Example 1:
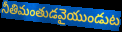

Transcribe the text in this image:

నీతిమంతుడవైయుండుట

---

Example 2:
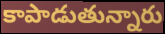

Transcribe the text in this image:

కాపాడుతున్నారు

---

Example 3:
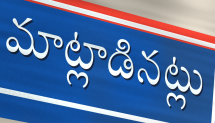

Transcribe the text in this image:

మాట్లాడినట్లు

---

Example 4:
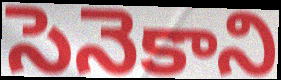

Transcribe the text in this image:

సెనెకాని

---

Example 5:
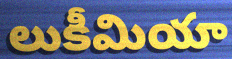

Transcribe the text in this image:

లుకీమియా